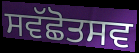
ਸਵੱਛੋਤਸਵ